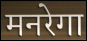
मनरेगा